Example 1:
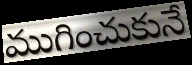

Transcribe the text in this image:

ముగించుకునే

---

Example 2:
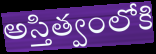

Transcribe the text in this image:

అస్తిత్వంలోకి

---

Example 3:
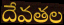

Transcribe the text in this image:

దేవతల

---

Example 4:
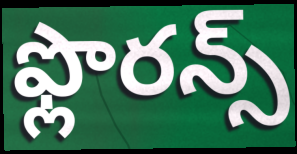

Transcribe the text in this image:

ఫ్లొరన్స్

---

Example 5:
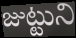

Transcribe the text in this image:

జుట్టుని